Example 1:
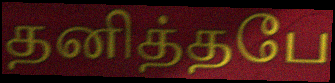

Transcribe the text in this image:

தனித்தபே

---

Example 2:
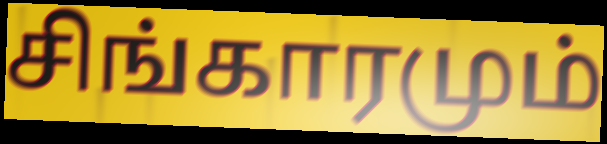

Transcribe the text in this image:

சிங்காரமும்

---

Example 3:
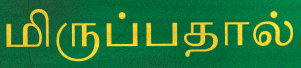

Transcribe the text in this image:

மிருப்பதால்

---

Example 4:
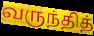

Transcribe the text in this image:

வருந்தித்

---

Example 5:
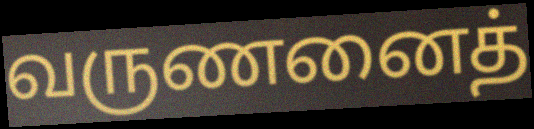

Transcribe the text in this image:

வருணனைத்